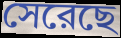
সেরেছে